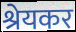
श्रेयकर